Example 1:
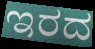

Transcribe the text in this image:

ಇರದ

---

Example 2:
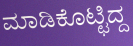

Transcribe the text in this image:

ಮಾಡಿಕೊಟ್ಟಿದ್ದ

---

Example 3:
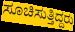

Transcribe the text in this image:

ಸೂಚಿಸುತ್ತಿದ್ದರು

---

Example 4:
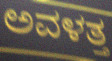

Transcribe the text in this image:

ಅವಳತ್ತ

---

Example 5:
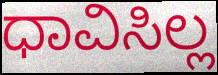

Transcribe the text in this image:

ಧಾವಿಸಿಲ್ಲ